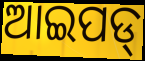
ଆଇପଡ୍